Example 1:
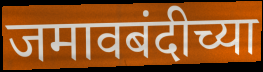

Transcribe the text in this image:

जमावबंदीच्या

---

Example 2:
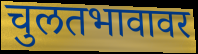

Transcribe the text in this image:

चुलतभावावर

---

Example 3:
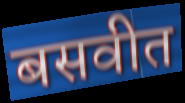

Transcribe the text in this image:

बसवीत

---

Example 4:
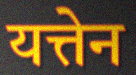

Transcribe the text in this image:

यत्तेन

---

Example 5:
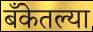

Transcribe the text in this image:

बँकेतल्या